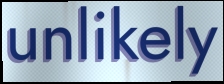
unlikely